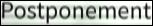
Postponement